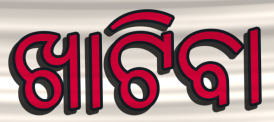
ଖାଟିବା